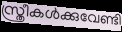
സ്ത്രീകൾക്കുവേണ്ടി